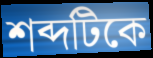
শব্দটিকে